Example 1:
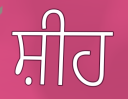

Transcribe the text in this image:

ਸ਼ੀਹ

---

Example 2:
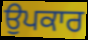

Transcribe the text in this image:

ਉਪਕਾਰ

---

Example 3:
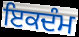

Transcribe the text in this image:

ਇਕਦੰਮ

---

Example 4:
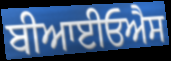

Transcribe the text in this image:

ਬੀਆਈਓਐਸ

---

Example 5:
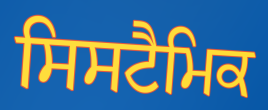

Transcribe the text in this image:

ਸਿਸਟੈਮਿਕ